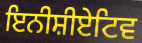
ਇਨੀਸ਼ੀਏਟਿਵ